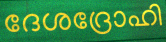
ദേശദ്രോഹി